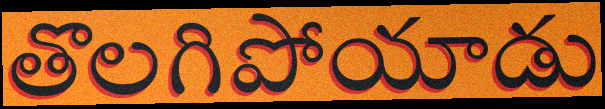
తొలగిపోయాడు